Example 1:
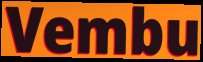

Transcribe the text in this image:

Vembu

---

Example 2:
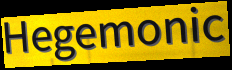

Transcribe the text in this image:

Hegemonic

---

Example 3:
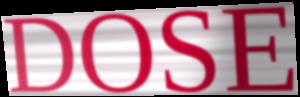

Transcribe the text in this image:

DOSE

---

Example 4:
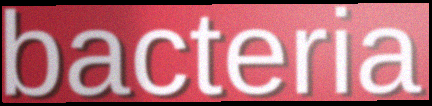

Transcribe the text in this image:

bacteria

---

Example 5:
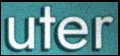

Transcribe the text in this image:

uter